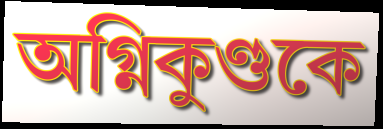
অগ্নিকুণ্ডকে